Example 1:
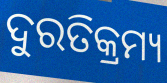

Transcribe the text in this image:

ଦୁରତିକ୍ରମ୍ୟ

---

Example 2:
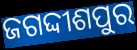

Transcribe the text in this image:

ଜଗଦ୍ଦୀଶପୁର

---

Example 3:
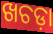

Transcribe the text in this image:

ଖଚଡ଼ା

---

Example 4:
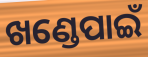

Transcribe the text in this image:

ଖଣ୍ଡେପାଇଁ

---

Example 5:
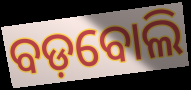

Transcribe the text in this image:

ବଡ଼ବୋଲି